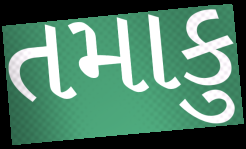
તમાકુ